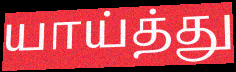
யாய்த்து